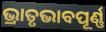
ଭ୍ରାତୃଭାବପୂର୍ଣ୍ଣ